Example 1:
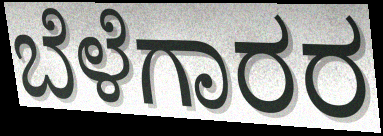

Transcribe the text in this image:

ಬೆಳೆಗಾರರ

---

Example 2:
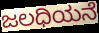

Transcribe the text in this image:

ಜಲಧಿಯನೆ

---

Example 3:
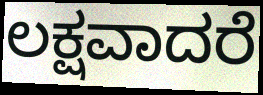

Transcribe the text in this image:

ಲಕ್ಷವಾದರೆ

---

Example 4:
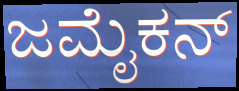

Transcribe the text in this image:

ಜಮೈಕನ್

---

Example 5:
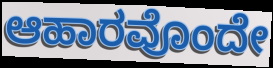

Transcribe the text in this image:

ಆಹಾರವೊಂದೇ